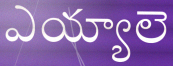
ఎయ్యాలె